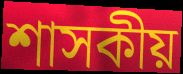
শাসকীয়